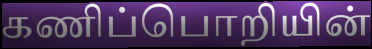
கணிப்பொறியின்